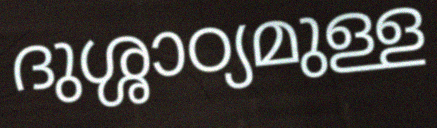
ദുശ്ശാഠ്യമുള്ള